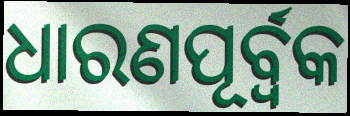
ଧାରଣପୂର୍ବ୍ବକ